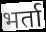
भर्ता